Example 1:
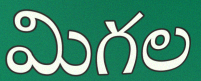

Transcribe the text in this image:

మిగల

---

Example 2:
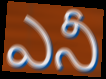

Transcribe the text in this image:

ఎనీ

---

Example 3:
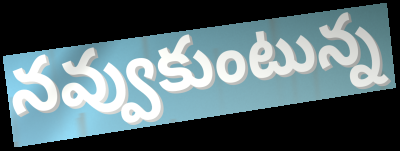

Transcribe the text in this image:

నవ్వుకుంటున్న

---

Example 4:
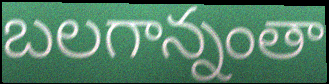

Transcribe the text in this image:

బలగాన్నంతా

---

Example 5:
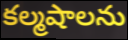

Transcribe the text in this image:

కల్మషాలను